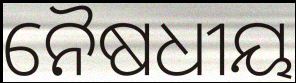
ନୈଷଧୀୟ